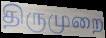
திருமுறை